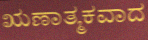
ಋಣಾತ್ಮಕವಾದ